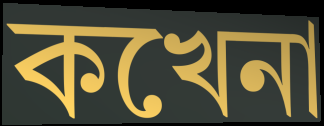
কখেনা